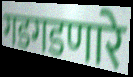
गडगडणारे